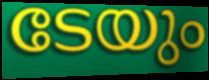
ടേയും